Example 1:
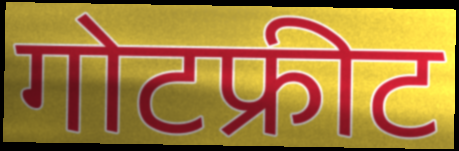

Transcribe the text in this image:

गोटफ्रीट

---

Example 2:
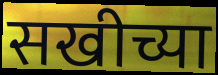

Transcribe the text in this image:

सखीच्या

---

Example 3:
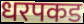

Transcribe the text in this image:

धरपकड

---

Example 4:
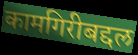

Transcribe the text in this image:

कामगिरीबद्दल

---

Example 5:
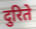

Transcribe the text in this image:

दुरिते